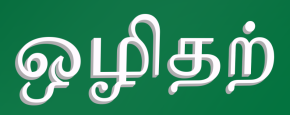
ஒழிதற்